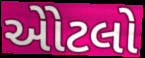
એોટલો